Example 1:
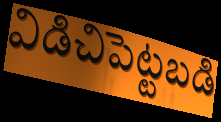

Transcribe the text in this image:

విడిచిపెట్టబడి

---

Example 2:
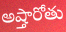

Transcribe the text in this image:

అష్తారోతు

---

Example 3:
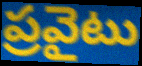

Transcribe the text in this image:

ప్రవైటు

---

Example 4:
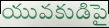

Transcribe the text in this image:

యువకుడిపై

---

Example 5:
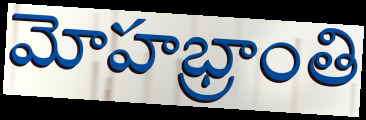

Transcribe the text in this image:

మోహభ్రాంతి